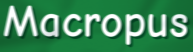
Macropus